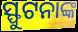
ସ୍ଫୁଟନାଙ୍କ